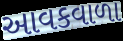
આવકવાળા